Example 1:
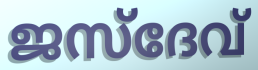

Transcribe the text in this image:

ജസ്ദേവ്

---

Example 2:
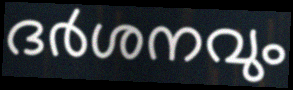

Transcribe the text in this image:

ദർശനവും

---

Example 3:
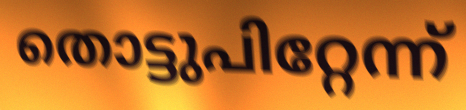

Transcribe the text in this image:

തൊട്ടുപിറ്റേന്ന്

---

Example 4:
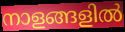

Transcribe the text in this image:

നാളങ്ങളിൽ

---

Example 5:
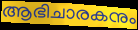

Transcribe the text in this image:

ആഭിചാരകനും